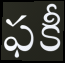
ఫకీ